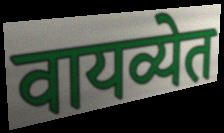
वायव्येत